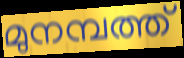
മുനമ്പത്ത്